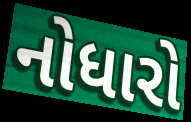
નોધારો